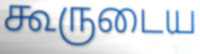
கூருடைய